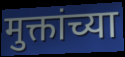
मुक्तांच्या